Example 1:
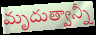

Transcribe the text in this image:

మృదుత్వాన్నీ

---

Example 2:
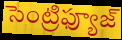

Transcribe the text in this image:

సెంట్రిఫ్యూజ్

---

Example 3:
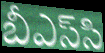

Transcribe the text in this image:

బీఎస్‌సి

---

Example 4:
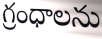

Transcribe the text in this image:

గ్రంధాలను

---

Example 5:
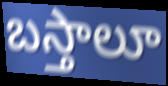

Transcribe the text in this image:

బస్తాలూ